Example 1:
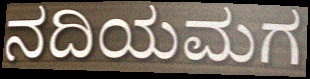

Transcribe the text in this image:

ನದಿಯಮಗ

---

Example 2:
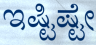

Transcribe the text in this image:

ಇಷ್ಟಿಷ್ಟೇ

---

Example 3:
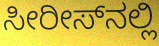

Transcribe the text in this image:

ಸೀರೀಸ್‌ನಲ್ಲಿ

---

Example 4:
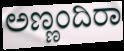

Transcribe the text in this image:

ಅಣ್ಣಂದಿರಾ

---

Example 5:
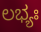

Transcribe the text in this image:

ಲಭ್ಯಃ